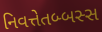
નિવત્તેતબ્બસ્સ